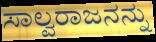
ಸಾಲ್ವರಾಜನನ್ನು